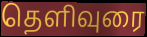
தெளிவுரை